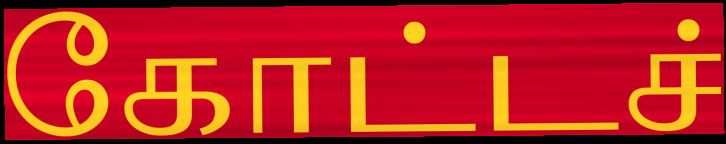
கோட்டச்